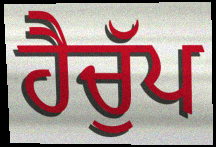
ਹੈਚੁੱਪ